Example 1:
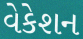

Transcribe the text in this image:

વેકેશન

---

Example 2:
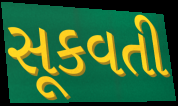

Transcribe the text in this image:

સૂકવતી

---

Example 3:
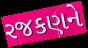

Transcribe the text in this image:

રજકણને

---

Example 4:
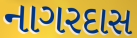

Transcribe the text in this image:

નાગરદાસ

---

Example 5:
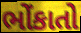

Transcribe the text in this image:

ભોંકાતો